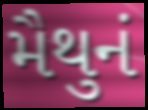
મૈથુનં